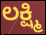
ಲಕ್ಷ್ಮಿ